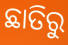
ଛାତିରୁ